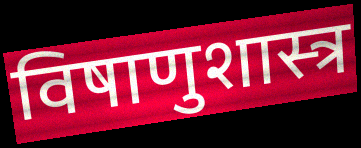
विषाणुशास्त्र